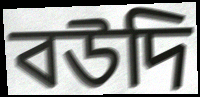
বউদি